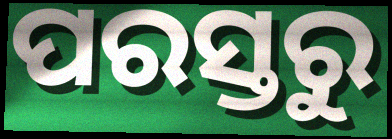
ପରସ୍ତରୁ